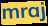
mraj